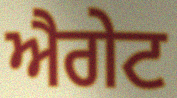
ਐਗੇਟ